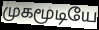
முகமூடியே